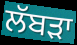
ਲੱਬੜਾ